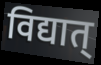
विद्यात्